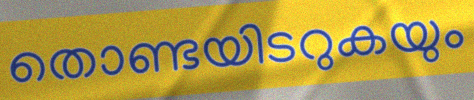
തൊണ്ടയിടറുകയും